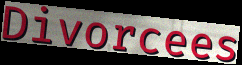
Divorcees